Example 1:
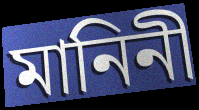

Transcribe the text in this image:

মানিনী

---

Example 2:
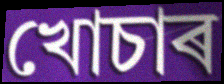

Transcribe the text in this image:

খোচাৰ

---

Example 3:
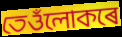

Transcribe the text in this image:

তেওঁলোকৰে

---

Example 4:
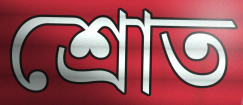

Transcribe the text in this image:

শ্ৰোত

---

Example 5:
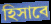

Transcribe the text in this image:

হিসাবে